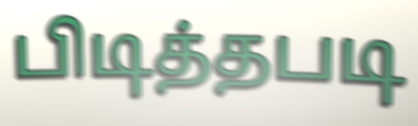
பிடித்தபடி